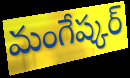
మంగేష్కర్